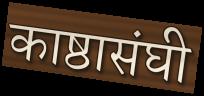
काष्ठासंघी